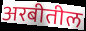
अरबीतील